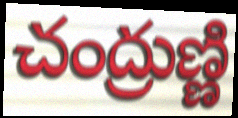
చంద్రుణ్ణి